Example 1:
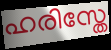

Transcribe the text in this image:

ഹരിസ്തേ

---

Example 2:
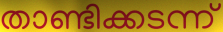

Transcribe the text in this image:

താണ്ടിക്കടന്ന്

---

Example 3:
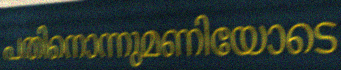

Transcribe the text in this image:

പതിനൊന്നുമണിയോടെ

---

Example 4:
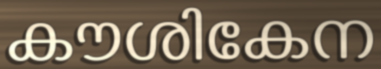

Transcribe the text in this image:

കൗശികേന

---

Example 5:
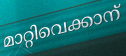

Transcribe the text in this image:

മാറ്റിവെക്കാന്